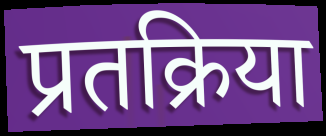
प्रतक्रिया